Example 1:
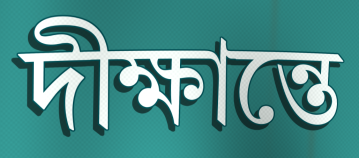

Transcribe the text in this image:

দীক্ষান্তে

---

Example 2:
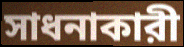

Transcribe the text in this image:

সাধনাকারী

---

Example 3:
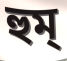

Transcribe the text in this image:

হুম্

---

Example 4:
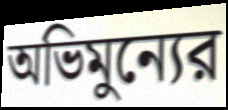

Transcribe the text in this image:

অভিমুন্যের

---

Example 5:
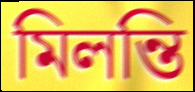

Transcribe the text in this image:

মিলন্তি